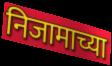
निजामाच्या